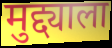
मुद्द्याला